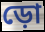
ড়ো